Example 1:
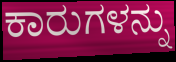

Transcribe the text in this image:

ಕಾರುಗಳನ್ನು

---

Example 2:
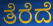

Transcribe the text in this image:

ತೆರೆದೆ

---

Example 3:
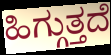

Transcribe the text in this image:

ಹಿಗ್ಗುತ್ತದೆ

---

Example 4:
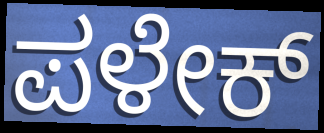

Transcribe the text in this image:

ಪಳೇಕ್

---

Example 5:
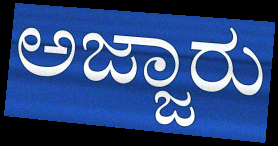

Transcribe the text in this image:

ಅಜ್ಜಾರು